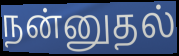
நன்னுதல்